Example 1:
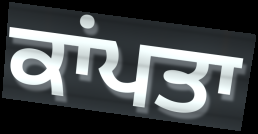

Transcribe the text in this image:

ਕਾਂਪਤਾ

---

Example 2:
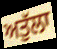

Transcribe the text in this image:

ਅਤੁੱਲਾ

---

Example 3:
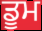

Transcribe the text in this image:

ਡੂਮ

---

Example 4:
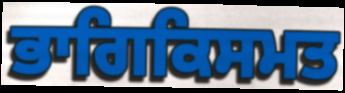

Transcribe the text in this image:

ਭਾਗਿਕਿਸਮਤ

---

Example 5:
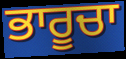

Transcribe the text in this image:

ਭਾਰੂਚਾ